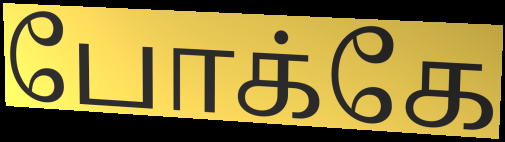
போக்கே